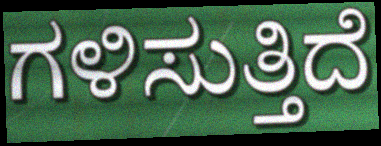
ಗಳಿಸುತ್ತಿದೆ